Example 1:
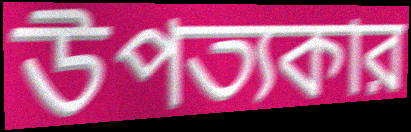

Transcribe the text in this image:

উপত্যকার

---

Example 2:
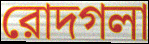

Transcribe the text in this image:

রোদগলা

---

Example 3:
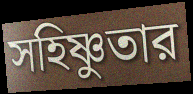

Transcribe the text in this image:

সহিষ্ণুতার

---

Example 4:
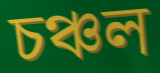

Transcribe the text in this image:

চঞ্চল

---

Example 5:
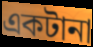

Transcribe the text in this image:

একটানা